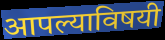
आपल्याविषयी